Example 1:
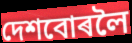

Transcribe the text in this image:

দেশবোৰলৈ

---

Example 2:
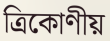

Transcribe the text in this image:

ত্ৰিকোণীয়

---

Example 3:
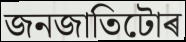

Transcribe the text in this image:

জনজাতিটোৰ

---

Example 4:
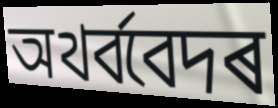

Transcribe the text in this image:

অথৰ্ববেদৰ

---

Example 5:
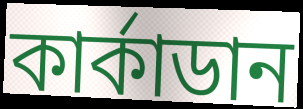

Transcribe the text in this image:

কাৰ্কাডান